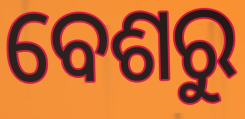
ବେଶରୁ